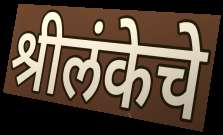
श्रीलंकेचे